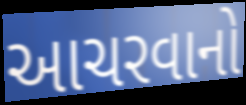
આચરવાનો